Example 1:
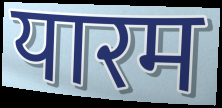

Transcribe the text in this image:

यारम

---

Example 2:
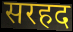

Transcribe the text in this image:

सरहद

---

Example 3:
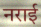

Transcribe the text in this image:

नराई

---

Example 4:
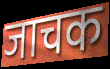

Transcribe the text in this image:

जाचक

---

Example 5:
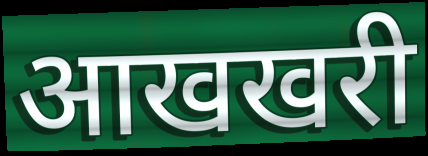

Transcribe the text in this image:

आखखरी